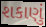
શકાણું